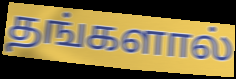
தங்களால்